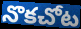
నొకచోట